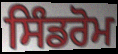
ਸਿੰਡਰੋਮ